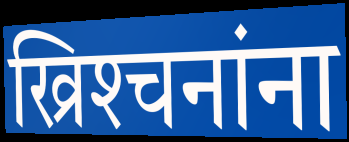
ख्रिश्‍चनांना